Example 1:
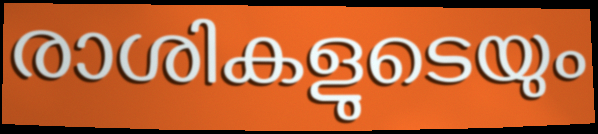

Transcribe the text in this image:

രാശികളുടെയും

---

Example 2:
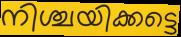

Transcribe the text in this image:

നിശ്ചയിക്കട്ടെ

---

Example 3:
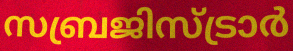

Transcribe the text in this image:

സബ്രജിസ്ട്രാർ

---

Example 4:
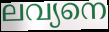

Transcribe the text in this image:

ലവ്യനെ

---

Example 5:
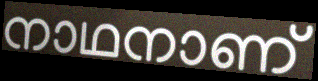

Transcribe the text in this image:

നാഥനാണ്